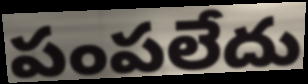
పంపలేదు